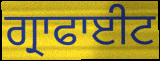
ਗ੍ਰਾਫਾਈਟ